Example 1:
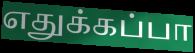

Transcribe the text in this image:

எதுக்கப்பா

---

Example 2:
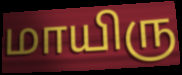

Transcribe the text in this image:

மாயிரு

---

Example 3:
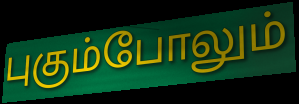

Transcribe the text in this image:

புகும்போலும்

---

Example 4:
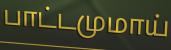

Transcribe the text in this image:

பாட்டமுமாய்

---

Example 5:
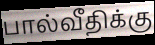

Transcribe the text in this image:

பால்வீதிக்கு